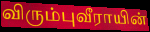
விரும்புவீராயின்